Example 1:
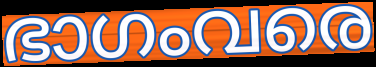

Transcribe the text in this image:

ഭാഗംവരെ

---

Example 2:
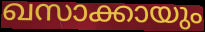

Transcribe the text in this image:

ഖസാക്കായും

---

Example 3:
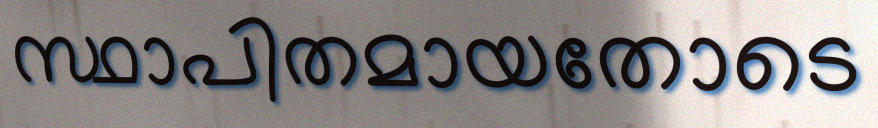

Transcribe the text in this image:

സ്ഥാപിതമായതോടെ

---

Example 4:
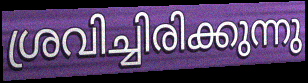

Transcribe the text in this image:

ശ്രവിച്ചിരിക്കുന്നു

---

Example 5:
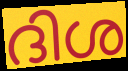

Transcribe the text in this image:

ദിശ